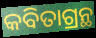
କବିତାଗ୍ରନ୍ଥ